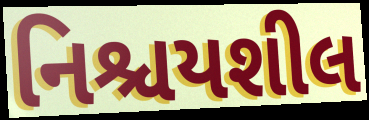
નિશ્ચયશીલ